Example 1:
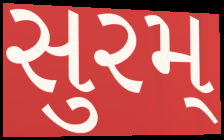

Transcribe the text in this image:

સુરમ્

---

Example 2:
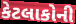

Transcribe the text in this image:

કેટલાકોની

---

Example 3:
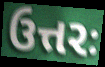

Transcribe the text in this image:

ઉત્તરઃ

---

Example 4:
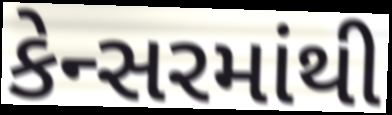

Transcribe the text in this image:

કેન્સરમાંથી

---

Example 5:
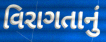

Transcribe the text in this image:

વિરાગતાનું